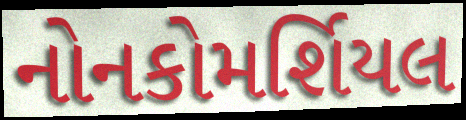
નોનકોમર્શિયલ